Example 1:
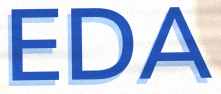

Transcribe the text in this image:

EDA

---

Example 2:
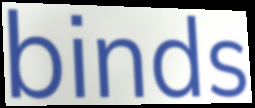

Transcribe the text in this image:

binds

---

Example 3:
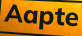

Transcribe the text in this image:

Aapte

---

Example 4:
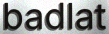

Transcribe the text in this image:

badlat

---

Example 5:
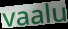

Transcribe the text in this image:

vaalu